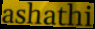
ashathi